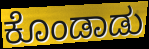
ಕೊಂಡಾಡು